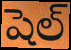
షెల్